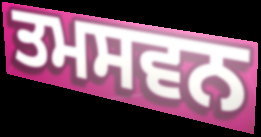
ਤਮਸਵਨ